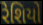
રેશિયો